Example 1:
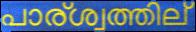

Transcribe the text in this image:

പാര്ശ്വത്തില്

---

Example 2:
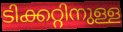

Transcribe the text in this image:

ടിക്കറ്റിനുള്ള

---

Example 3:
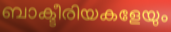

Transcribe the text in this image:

ബാക്ടീരിയകളേയും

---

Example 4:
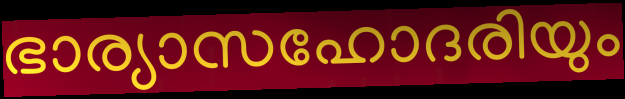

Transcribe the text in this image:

ഭാര്യാസഹോദരിയും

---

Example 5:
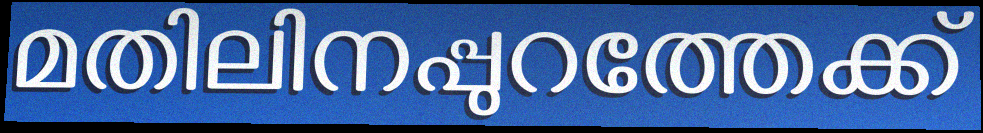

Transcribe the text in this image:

മതിലിനപ്പുറത്തേക്ക്